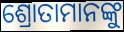
ଶ୍ରୋତାମାନଙ୍କୁ